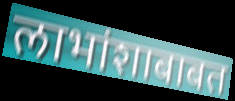
लाभांशाबाबत